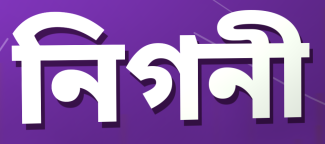
নিগনী